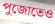
পুজোতেও